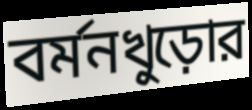
বর্মনখুড়োর